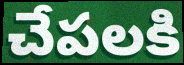
చేపలకి